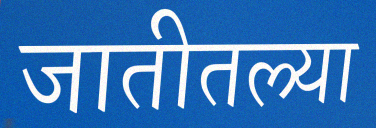
जातीतल्या